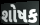
શોષક